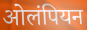
ओलंपियन